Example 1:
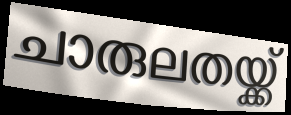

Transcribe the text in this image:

ചാരുലതയ്ക്ക്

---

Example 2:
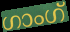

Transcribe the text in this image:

ഗാംഗ്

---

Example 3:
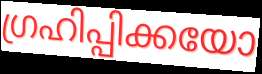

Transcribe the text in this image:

ഗ്രഹിപ്പിക്കയോ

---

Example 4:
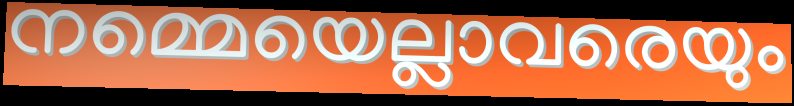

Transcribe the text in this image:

നമ്മെയെല്ലാവരെയും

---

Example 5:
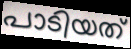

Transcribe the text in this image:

പാടിയത്